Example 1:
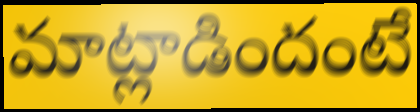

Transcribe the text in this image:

మాట్లాడిందంటే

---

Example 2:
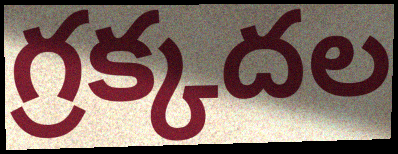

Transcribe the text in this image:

గ్రక్కదల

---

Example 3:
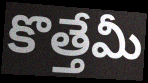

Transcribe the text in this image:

కొత్తేమీ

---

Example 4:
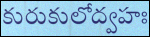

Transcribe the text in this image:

కురుకులోద్వహః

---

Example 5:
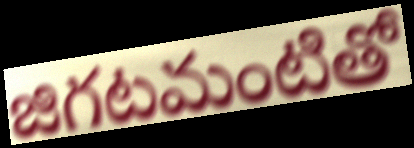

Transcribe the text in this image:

జిగటమంటితో